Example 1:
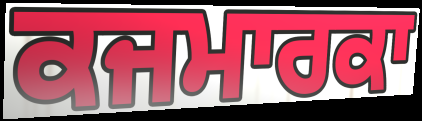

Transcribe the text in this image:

ਕਜਮਾਰਕਾ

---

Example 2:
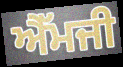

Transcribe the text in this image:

ਐੱਮਜੀ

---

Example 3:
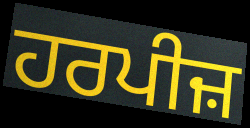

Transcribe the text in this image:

ਹਰਪੀਜ਼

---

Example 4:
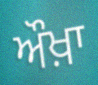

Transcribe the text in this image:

ਔਖ਼ਾ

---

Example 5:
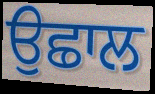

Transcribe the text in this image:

ਉਛਾਲ